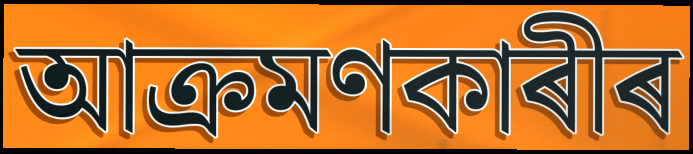
আক্ৰমণকাৰীৰ